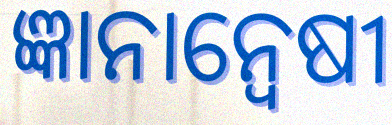
ଜ୍ଞାନାନ୍ୱେଷୀ